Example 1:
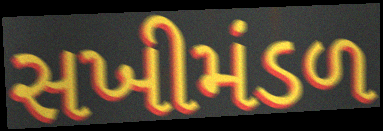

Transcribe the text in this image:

સખીમંડળ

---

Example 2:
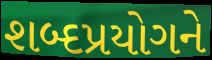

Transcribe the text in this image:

શબ્દપ્રયોગને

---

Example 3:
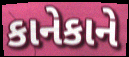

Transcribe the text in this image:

કાનેકાને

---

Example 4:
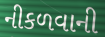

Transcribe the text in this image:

નીકળવાની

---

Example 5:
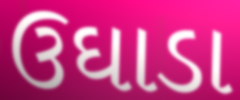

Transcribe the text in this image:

ઉઘાડા